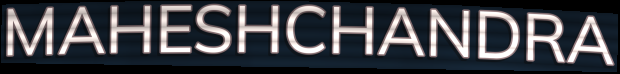
MAHESHCHANDRA